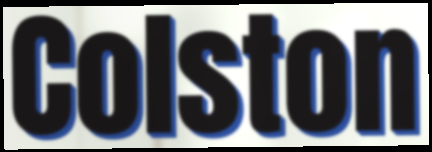
Colston